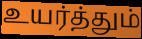
உயர்த்தும்